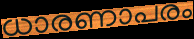
ധാരണാപരം